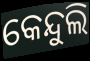
କେନ୍ଦୁଲି